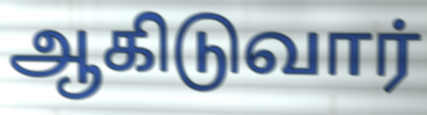
ஆகிடுவார்